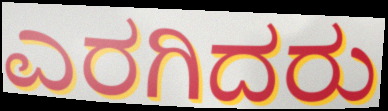
ಎರಗಿದರು